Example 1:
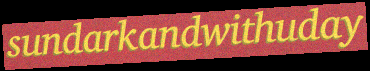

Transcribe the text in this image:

sundarkandwithuday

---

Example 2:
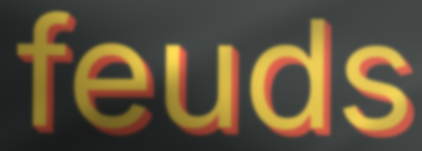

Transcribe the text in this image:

feuds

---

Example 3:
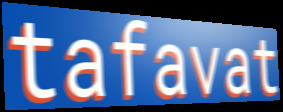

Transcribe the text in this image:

tafavat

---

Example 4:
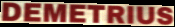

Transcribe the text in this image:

DEMETRIUS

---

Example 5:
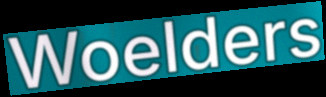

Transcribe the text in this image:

Woelders